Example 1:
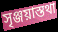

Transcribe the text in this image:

সৃঞ্জয়াস্তথা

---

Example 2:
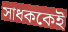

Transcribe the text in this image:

সাধককেই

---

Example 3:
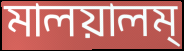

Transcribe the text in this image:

মালয়ালম্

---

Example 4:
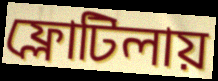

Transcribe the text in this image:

ফ্লোটিলায়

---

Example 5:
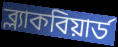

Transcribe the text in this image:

ব্ল্যাকবিয়ার্ড